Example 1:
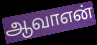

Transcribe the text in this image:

ஆவாஎன்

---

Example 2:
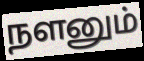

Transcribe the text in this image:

நளனும்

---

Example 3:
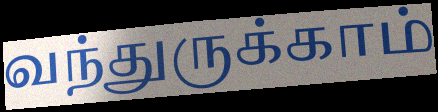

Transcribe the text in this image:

வந்துருக்காம்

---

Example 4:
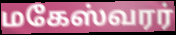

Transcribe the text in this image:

மகேஸ்வரர்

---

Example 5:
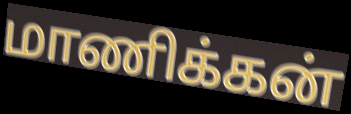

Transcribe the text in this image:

மாணிக்கன்